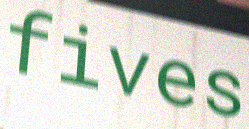
fives